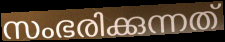
സംഭരിക്കുന്നത്